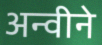
अन्वीने